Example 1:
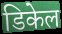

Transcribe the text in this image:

डिकेल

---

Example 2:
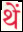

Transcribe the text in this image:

थें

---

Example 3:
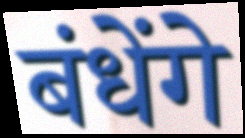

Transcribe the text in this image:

बंधेंगे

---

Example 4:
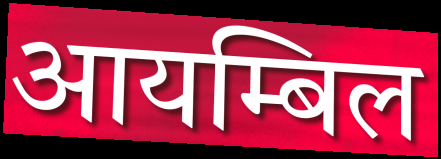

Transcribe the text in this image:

आयम्बिल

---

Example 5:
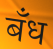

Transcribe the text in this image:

बँध